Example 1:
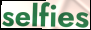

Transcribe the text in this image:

selfies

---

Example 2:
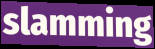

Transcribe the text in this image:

slamming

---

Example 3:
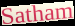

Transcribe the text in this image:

Satham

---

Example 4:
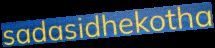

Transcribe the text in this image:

sadasidhekotha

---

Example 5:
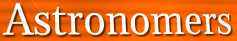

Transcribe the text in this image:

Astronomers